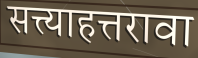
सत्त्याहत्तरावा